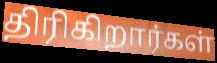
திரிகிறார்கள்